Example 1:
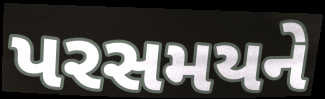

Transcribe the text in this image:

પરસમયને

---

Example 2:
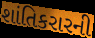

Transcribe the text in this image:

શાંતિકરારની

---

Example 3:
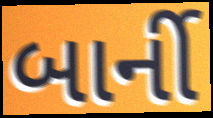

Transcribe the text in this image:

બાર્ની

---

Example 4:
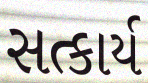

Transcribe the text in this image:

સત્કાર્ય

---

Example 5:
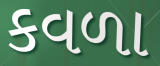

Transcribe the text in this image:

કવળા